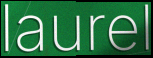
laurel